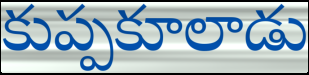
కుప్పకూలాడు